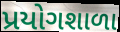
પ્રયોગશાળા